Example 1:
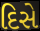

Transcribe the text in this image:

દિસે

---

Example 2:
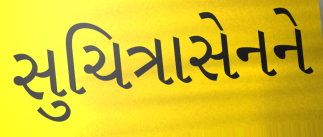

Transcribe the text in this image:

સુચિત્રાસેનને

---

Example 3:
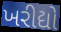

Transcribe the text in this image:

ખરીદ્યો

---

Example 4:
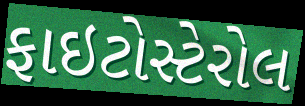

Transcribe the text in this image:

ફાઇટોસ્ટેરોલ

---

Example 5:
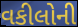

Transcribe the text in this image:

વકીલોની